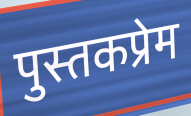
पुस्तकप्रेम